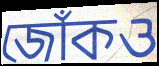
জোঁকও